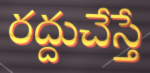
రద్దుచేస్తే